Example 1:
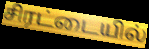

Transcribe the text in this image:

சிரட்டையில்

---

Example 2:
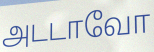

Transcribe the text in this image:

அடடாவோ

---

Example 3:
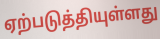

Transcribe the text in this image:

ஏற்படுத்தியுள்ளது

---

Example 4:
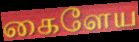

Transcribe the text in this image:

கைளேய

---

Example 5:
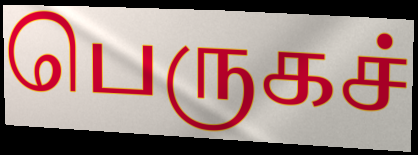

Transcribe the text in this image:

பெருகச்